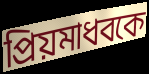
প্রিয়মাধবকে